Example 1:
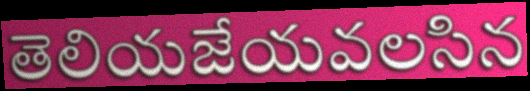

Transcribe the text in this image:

తెలియజేయవలసిన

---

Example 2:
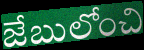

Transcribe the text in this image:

జేబులోంచి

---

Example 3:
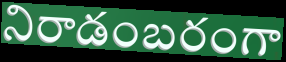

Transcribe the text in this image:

నిరాడంబరంగా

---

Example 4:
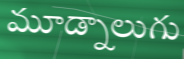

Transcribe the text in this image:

మూడ్నాలుగు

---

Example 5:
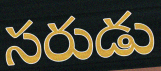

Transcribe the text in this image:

సరుడు